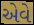
એવે